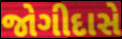
જોગીદાસે